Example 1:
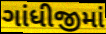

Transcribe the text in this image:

ગાંધીજીમાં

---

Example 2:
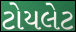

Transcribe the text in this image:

ટોયલેટ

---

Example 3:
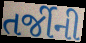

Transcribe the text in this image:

તર્જીની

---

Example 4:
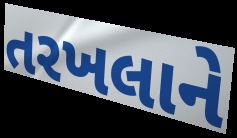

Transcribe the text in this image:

તરખલાને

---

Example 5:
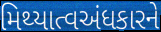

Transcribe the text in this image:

મિથ્યાત્વઅંધકારને